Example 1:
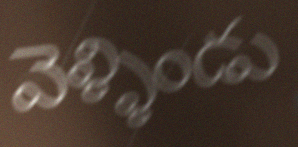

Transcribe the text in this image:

వెళ్ళిండు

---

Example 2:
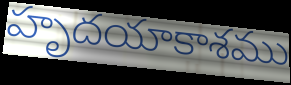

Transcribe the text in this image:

హృదయాకాశము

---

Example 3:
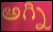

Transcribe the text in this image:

అగ్ని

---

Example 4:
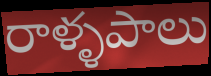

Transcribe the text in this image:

రాళ్ళపాలు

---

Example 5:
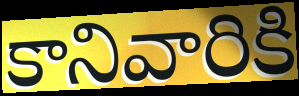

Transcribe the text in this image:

కానివారికి